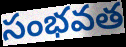
సంభవత